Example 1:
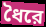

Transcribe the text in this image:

ধৈরে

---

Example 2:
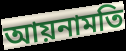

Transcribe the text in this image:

আয়নামতি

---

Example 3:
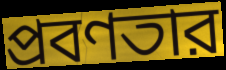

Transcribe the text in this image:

প্রবণতার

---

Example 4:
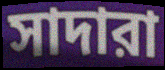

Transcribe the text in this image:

সাদারা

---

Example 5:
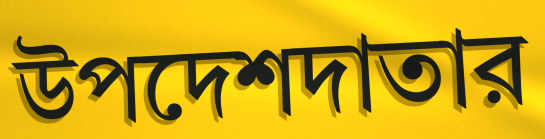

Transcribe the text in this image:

উপদেশদাতার